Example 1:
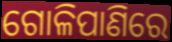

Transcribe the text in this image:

ଗୋଳିପାଣିରେ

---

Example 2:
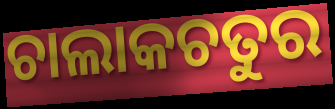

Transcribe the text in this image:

ଚାଲାକଚତୁର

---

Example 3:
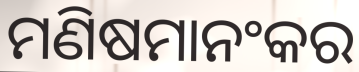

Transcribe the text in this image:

ମଣିଷମାନଂକର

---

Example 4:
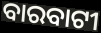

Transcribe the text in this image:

ବାରବାଟୀ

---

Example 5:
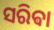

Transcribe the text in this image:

ସରିଵା